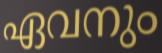
ഏവനും